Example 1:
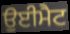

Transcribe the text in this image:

ਉਈਮੈਟ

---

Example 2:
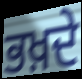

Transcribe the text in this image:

ਭਖ਼ਦੇ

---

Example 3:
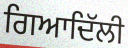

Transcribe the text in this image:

ਗਿਆਦਿੱਲੀ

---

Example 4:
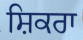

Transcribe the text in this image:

ਸ਼ਿਕਰਾ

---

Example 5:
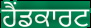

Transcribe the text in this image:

ਹੈਂਡਕਾਰਟ